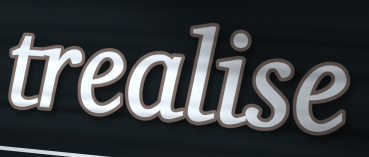
trealise